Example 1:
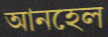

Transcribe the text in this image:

আনহেল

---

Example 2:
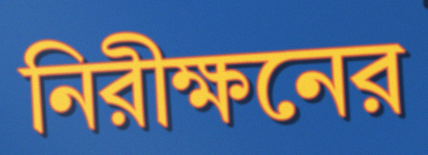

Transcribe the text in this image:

নিরীক্ষনের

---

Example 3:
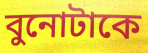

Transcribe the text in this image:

বুনোটাকে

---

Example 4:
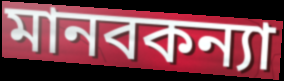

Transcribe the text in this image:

মানবকন্যা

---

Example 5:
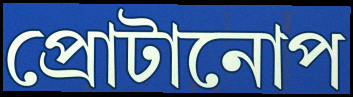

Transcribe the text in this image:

প্রোটানোপ